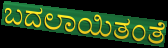
ಬದಲಾಯಿತಂತೆ